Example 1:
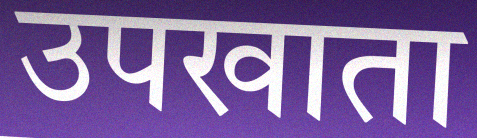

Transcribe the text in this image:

उपखाता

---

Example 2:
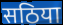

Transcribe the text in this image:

सठिया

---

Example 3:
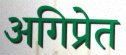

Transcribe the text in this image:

अगिप्रेत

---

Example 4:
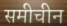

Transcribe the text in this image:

समीचीन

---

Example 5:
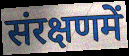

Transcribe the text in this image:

संरक्षणमें